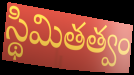
స్థిమితత్వం